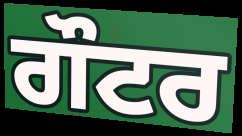
ਗੌਟਰ